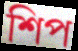
শিপ